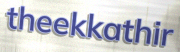
theekkathir